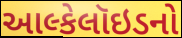
આલ્કેલૉઇડનો